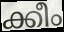
ക്കീം